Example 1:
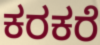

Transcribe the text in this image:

ಕರಕರೆ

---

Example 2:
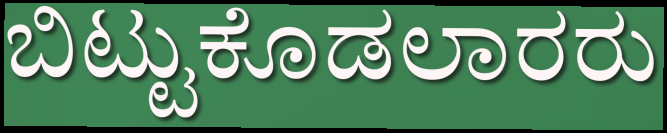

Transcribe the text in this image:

ಬಿಟ್ಟುಕೊಡಲಾರರು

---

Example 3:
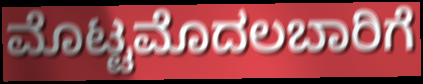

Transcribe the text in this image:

ಮೊಟ್ಟಮೊದಲಬಾರಿಗೆ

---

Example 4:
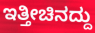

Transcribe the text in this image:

ಇತ್ತೀಚಿನದ್ದು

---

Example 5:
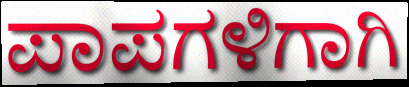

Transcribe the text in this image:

ಪಾಪಗಳಿಗಾಗಿ